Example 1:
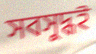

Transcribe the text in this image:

সবসুদ্ধই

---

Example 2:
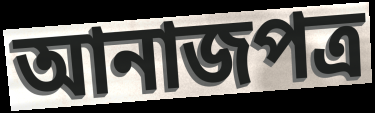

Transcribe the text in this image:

আনাজপত্র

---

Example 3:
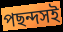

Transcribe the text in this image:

পছন্দসই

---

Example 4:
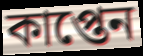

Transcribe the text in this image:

কাপ্তেন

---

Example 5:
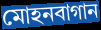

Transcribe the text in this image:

মোহনবাগান